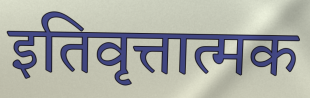
इतिवृत्तात्मक